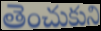
తెంచుకుని